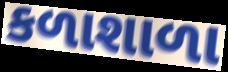
કળાશાળા